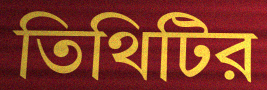
তিথিটির